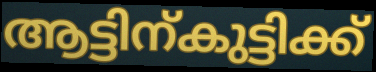
ആട്ടിന്കുട്ടിക്ക്